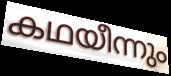
കഥയീന്നും